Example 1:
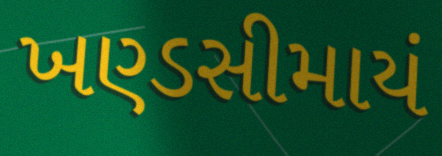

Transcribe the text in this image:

ખણ્ડસીમાયં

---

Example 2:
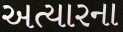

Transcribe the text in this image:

અત્યારના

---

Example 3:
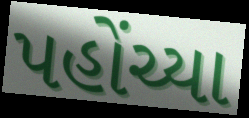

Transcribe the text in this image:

પહોંચ્યા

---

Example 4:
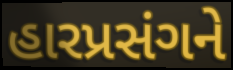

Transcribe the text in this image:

હારપ્રસંગને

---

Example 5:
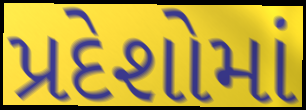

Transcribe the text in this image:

પ્રદેશોમાં